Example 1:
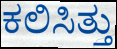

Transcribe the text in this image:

ಕಲಿಸಿತ್ತು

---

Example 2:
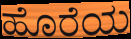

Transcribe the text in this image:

ಹೊರೆಯ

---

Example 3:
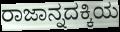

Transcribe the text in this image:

ರಾಜಾನ್ನದಕ್ಕಿಯ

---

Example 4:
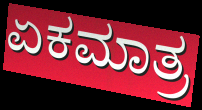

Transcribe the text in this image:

ಏಕಮಾತ್ರ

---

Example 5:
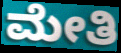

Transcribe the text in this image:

ಮೇತಿ